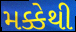
મક્કેથી